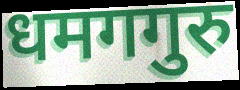
धमगगुरु